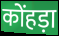
कोंहड़ा